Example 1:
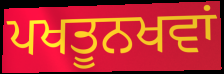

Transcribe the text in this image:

ਪਖਤੂਨਖਵਾਂ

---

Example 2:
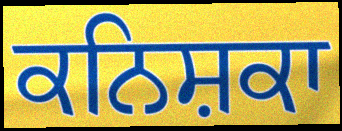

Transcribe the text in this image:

ਕਨਿਸ਼ਕਾ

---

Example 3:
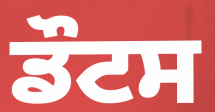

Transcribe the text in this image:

ਡੌਟਸ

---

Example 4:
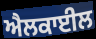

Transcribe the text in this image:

ਐਲਕਾਈਲ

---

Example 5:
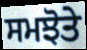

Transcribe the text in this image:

ਸਮਝੋਤੇ